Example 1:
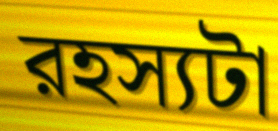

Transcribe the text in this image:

রহস্যটা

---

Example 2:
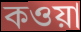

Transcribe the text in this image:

কওয়া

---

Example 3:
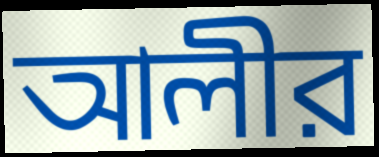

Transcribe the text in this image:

আলীর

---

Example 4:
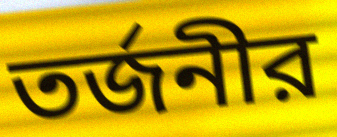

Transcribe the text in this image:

তর্জনীর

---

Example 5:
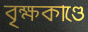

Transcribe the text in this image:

বৃক্ষকাণ্ডে